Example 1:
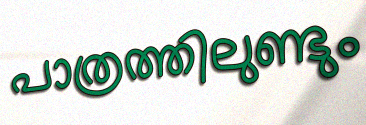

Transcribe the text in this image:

പാത്രത്തിലുണ്ടും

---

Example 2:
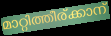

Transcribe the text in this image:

മാറ്റിത്തീര്ക്കാന്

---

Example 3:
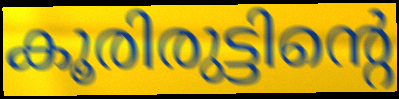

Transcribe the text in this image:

കൂരിരുട്ടിന്റെ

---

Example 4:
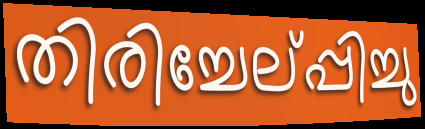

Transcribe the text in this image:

തിരിച്ചേല്പ്പിച്ചു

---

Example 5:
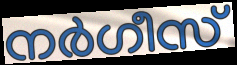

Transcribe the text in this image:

നർഗീസ്